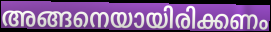
അങ്ങനെയായിരിക്കണം